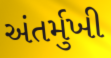
અંતર્મુખી